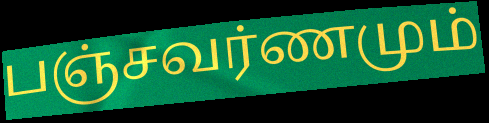
பஞ்சவர்ணமும்